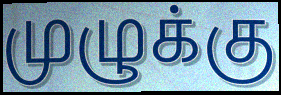
முழுக்கு